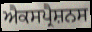
ਐਕਸਪ੍ਰੈਸ਼ਨਸ